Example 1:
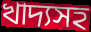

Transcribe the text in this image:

খাদ্যসহ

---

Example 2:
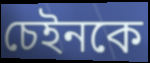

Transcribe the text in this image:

চেইনকে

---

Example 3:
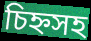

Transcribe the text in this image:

চিহ্নসহ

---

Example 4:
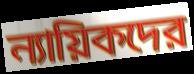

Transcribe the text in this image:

ন্যায়িকদের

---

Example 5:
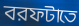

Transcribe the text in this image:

বরফটাতে